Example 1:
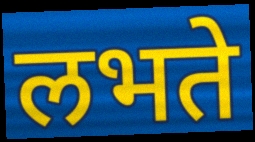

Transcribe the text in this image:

लभते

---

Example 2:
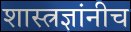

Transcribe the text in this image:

शास्त्रज्ञांनीच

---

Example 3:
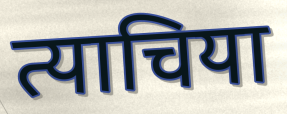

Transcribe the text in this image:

त्याचिया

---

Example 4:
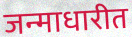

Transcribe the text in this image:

जन्माधारीत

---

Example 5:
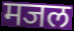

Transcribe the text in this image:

मजल